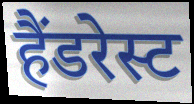
हैंडरेस्ट